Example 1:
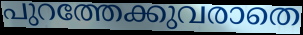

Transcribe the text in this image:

പുറത്തേക്കുവരാതെ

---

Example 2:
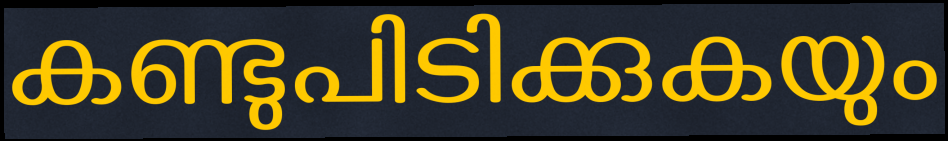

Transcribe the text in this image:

കണ്ടുപിടിക്കുകയും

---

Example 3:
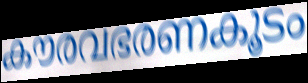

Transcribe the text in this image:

കൗരവഭരണകൂടം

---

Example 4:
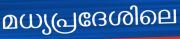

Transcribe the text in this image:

മധ്യപ്രദേശിലെ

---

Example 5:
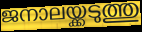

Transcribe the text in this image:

ജനാലയ്ക്കടുത്തു